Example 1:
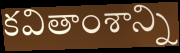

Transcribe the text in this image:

కవితాంశాన్ని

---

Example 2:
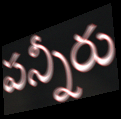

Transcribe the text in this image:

పన్నీరు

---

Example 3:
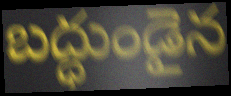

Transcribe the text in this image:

బద్ధుండైన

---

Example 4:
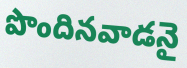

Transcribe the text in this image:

పొందినవాడనై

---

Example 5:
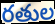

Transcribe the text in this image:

రతుల